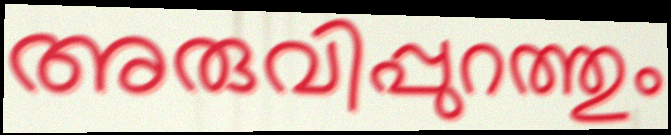
അരുവിപ്പുറത്തും